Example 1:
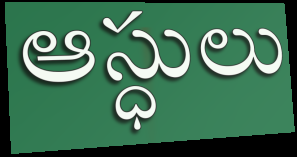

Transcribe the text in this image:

ఆస్ధులు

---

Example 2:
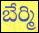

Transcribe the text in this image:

బేర్మి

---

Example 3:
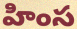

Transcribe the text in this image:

హింస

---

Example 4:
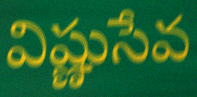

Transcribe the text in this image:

విష్ణుసేవ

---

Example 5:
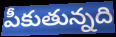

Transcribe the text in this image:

పీకుతున్నది